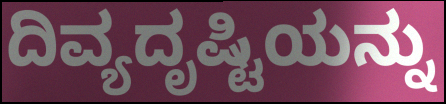
ದಿವ್ಯದೃಷ್ಟಿಯನ್ನು